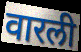
वारली